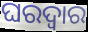
ଘରଦ୍ବାର